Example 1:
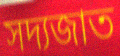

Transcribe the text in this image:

সদ্যজাত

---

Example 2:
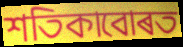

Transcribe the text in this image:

শতিকাবোৰত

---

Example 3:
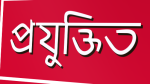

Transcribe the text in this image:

প্ৰযুক্তিত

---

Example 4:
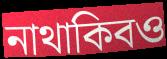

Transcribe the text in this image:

নাথাকিবও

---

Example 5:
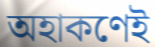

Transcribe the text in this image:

অহাকণেই